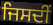
ਜਿਸਦੀਂ